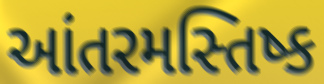
આંતરમસ્તિષ્ક